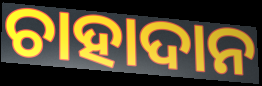
ଚାହାଦାନ